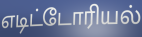
எடிட்டோரியல்